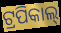
ଟ୍ରପିକାଲ୍